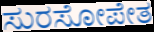
ಸುರಸೋಪೇತ